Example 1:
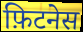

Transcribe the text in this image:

फ़िटनेस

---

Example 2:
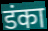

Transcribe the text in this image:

डंका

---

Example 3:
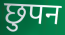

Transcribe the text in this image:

छुपन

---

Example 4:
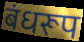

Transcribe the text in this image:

बंधरूप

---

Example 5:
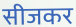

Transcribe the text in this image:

सीजकर